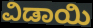
ವಿಡಾಯಿ